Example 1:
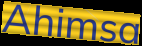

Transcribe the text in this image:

Ahimsa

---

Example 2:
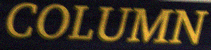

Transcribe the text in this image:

COLUMN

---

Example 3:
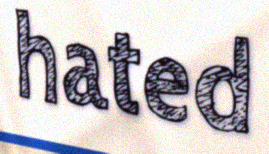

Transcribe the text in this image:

hated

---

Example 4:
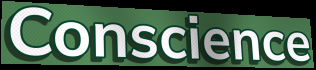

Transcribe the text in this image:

Conscience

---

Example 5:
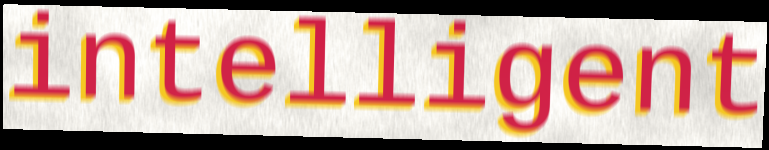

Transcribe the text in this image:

intelligent